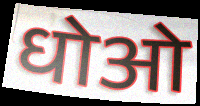
धोओ